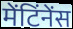
मेंटिंनेंस